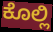
ಕೊಲ್ಲಿ